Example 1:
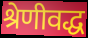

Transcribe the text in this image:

श्रेणीवद्ध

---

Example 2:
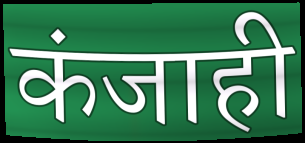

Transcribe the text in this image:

कंजाही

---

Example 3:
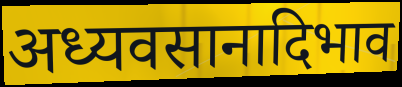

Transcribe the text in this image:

अध्यवसानादिभाव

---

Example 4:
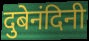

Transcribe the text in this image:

दुबेनंदिनी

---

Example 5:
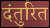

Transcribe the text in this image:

दंतुरित